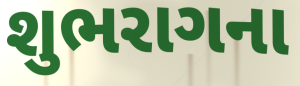
શુભરાગના